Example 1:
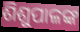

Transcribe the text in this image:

ଶିଶୁପାଳଙ୍କ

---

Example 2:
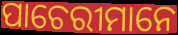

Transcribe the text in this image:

ପାଚେରୀମାନେ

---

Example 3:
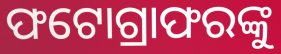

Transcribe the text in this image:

ଫଟୋଗ୍ରାଫରଙ୍କୁ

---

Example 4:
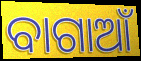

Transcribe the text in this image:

ବାଗାଆଁ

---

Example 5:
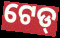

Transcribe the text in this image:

ଟେଡ୍